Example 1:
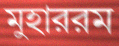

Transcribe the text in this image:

মুহাররম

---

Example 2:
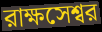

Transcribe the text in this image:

রাক্ষসেশ্বর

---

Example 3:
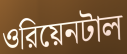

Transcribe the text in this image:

ওরিয়েনটাল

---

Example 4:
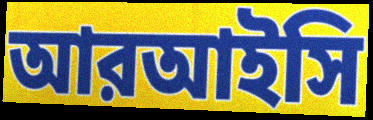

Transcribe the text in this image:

আরআইসি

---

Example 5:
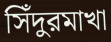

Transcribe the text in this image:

সিঁদুরমাখা